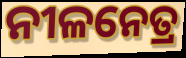
ନୀଳନେତ୍ର